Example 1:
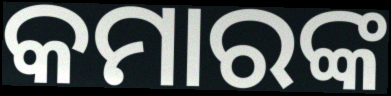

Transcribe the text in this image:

କମାରଙ୍କ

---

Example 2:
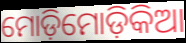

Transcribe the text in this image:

ମୋଡ଼ିମୋଡ଼ିକିଆ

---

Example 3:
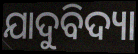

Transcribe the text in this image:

ଯାଦୁବିଦ୍ୟା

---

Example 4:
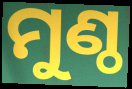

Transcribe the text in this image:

ମୁଣ୍ଠ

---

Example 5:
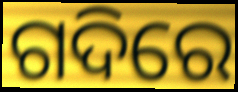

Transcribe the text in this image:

ଗଦିରେ